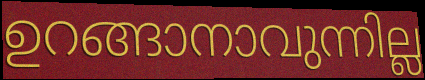
ഉറങ്ങാനാവുന്നില്ല